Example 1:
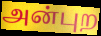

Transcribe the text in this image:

அன்புற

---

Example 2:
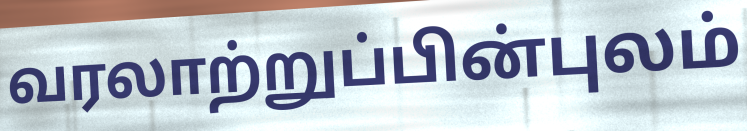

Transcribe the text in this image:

வரலாற்றுப்பின்புலம்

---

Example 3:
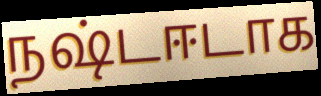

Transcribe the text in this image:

நஷ்டஈடாக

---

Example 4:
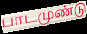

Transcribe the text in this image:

பாடமுண்டு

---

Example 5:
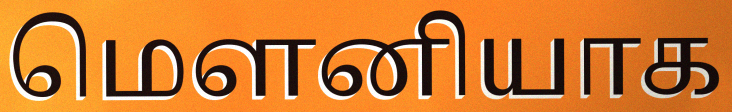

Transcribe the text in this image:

மெளனியாக